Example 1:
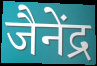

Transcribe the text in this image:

जैनेंद्र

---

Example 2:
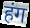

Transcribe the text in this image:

हंग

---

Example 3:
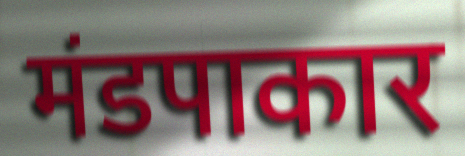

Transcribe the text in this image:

मंडपाकार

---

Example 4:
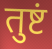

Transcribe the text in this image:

तुष्टं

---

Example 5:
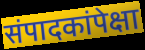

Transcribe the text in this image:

संपादकांपेक्षा